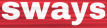
sways